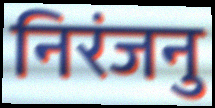
निरंजनु